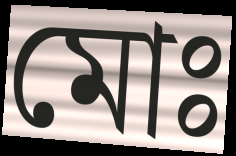
মোঃ